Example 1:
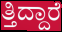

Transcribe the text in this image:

ತ್ತಿದ್ದಾರೆ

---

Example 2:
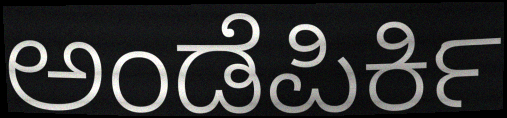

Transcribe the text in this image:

ಅಂಡೆಪಿರ್ಕಿ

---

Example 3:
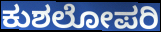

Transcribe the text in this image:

ಕುಶಲೋಪರಿ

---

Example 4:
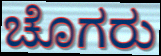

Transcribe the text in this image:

ಚೊಗರು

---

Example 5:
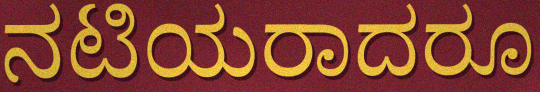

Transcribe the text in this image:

ನಟಿಯರಾದರೂ